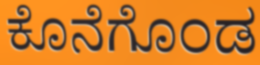
ಕೊನೆಗೊಂಡ